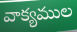
వాక్యముల